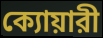
ক্যোয়ারী